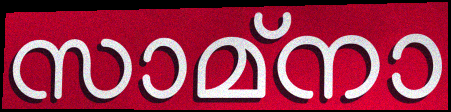
സാമ്നാ